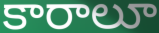
కారాలూ